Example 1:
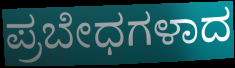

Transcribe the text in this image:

ಪ್ರಬೇಧಗಳಾದ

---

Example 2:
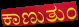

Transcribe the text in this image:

ಕಾಣುತುಂ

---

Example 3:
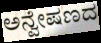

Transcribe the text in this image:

ಅನ್ವೇಷಣದ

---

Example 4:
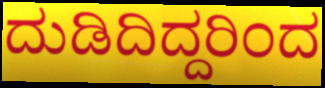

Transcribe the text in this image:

ದುಡಿದಿದ್ದರಿಂದ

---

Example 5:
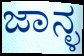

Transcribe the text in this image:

ಜಾನ್ಳ